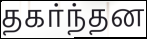
தகர்ந்தன